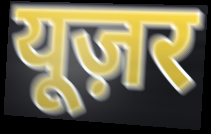
यूज़र